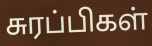
சுரப்பிகள்